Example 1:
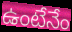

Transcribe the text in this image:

ఉంటేనేం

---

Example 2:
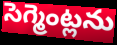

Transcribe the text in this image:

సెగ్మెంట్లను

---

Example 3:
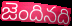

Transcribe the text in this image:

జెందినది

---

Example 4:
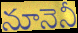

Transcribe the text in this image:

నూనెనీ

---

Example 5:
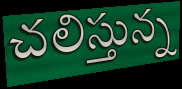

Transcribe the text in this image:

చలిస్తున్న